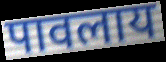
पावलाय